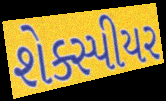
શેક્સ્પીયર